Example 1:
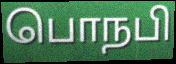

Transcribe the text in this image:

பொநபி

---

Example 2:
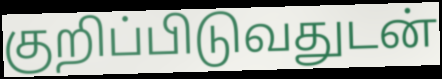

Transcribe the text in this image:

குறிப்பிடுவதுடன்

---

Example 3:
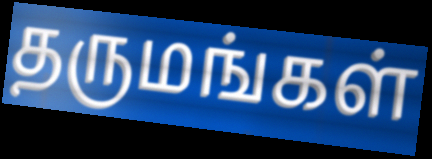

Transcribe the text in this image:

தருமங்கள்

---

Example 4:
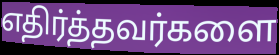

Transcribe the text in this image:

எதிர்த்தவர்களை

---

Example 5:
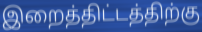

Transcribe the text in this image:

இறைத்திட்டத்திற்கு